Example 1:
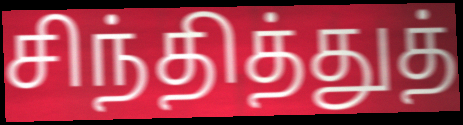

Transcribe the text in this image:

சிந்தித்துத்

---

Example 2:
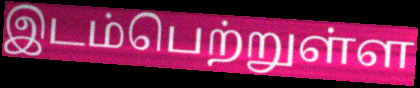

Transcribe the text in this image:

இடம்பெற்றுள்ள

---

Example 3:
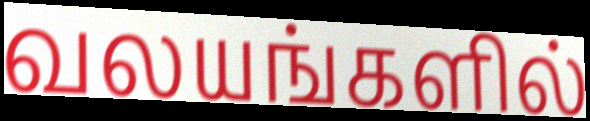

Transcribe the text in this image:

வலயங்களில்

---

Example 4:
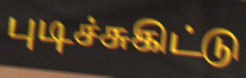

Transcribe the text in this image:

புடிச்சுகிட்டு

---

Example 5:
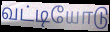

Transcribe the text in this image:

வட்டியோடு